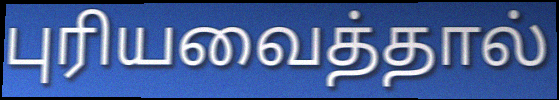
புரியவைத்தால்